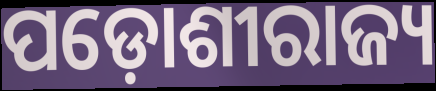
ପଡ଼ୋଶୀରାଜ୍ୟ